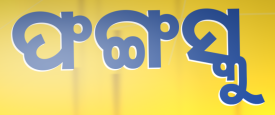
ଫଙ୍ଗସ୍କୁ